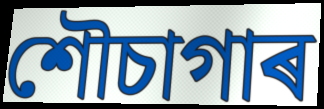
শৌচাগাৰ